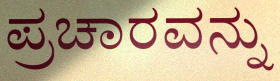
ಪ್ರಚಾರವನ್ನು